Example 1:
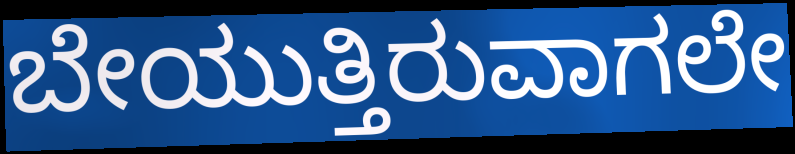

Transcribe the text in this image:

ಬೇಯುತ್ತಿರುವಾಗಲೇ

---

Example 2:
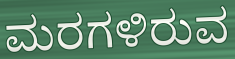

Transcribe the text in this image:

ಮರಗಳಿರುವ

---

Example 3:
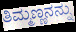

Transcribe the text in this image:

ತಿಮ್ಮಣ್ಣನನ್ನು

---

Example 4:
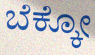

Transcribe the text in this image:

ಬೆಕ್ಕೋ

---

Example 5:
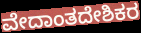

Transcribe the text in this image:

ವೇದಾಂತದೇಶಿಕರ